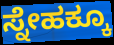
ಸ್ನೇಹಕ್ಕೂ